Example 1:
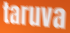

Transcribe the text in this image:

taruva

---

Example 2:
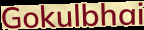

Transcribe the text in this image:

Gokulbhai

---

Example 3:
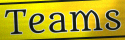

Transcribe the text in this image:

Teams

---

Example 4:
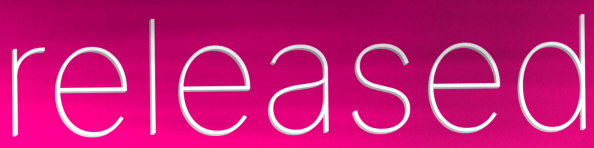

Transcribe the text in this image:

released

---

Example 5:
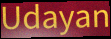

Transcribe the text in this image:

Udayan